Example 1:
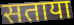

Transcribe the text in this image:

सताया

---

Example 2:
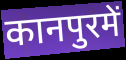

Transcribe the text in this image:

कानपुरमें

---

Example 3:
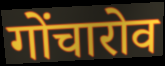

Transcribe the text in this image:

गोंचारोव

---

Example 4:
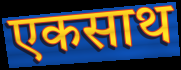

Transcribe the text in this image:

एकसाथ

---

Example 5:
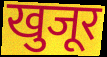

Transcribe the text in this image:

खुजूर